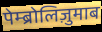
पेम्ब्रोलिज़ुमाब